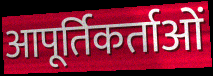
आपूर्तिकर्ताओं